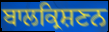
ਬਾਲਕ੍ਰਿਸ਼ਣਨ